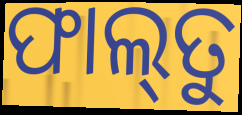
ଫାଲ୍‌ତୁ